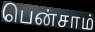
பென்சாம்